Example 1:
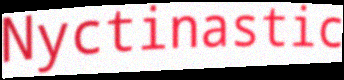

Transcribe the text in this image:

Nyctinastic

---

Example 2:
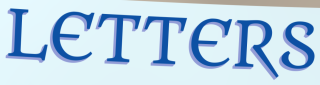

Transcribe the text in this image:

LETTERS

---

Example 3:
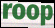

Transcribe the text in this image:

roop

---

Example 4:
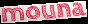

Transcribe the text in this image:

mouna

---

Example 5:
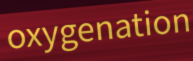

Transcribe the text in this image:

oxygenation